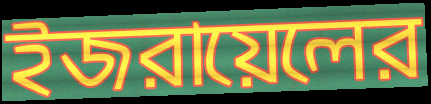
ইজরায়েলের